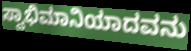
ಸ್ವಾಭಿಮಾನಿಯಾದವನು